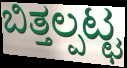
ಬಿತ್ತಲ್ಪಟ್ಟ